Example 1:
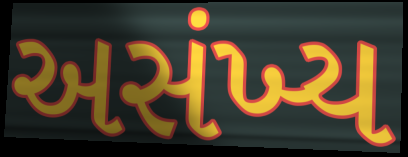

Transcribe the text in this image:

અસંખ્ય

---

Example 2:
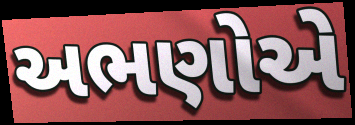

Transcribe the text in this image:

અભણોએ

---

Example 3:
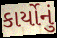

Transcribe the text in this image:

કાર્યોનું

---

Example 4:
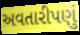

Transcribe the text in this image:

અવતારીપણું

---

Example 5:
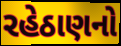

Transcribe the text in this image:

રહેઠાણનો